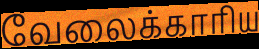
வேலைக்காரிய